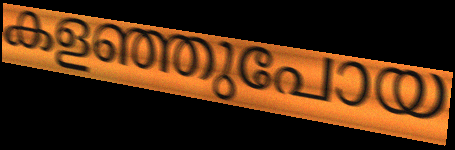
കളഞ്ഞുപോയ